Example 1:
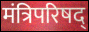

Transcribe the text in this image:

मंत्रिपरिषद्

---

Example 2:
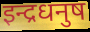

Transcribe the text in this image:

इन्‍द्रधनुष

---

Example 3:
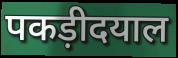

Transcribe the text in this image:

पकड़ीदयाल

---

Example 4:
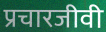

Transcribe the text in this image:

प्रचारजीवी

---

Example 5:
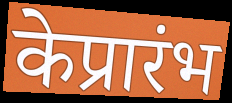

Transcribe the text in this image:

केप्रारंभ